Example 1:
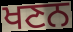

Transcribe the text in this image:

ਖਣਨ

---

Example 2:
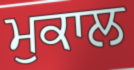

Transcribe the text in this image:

ਮੁਕਾਲ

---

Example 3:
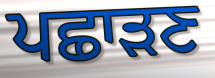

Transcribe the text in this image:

ਪਛਾੜਣ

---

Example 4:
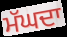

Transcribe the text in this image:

ਮੱਘਦਾ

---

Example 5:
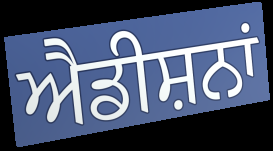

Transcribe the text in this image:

ਐਡੀਸ਼ਨਾਂ